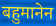
बहुमानेन